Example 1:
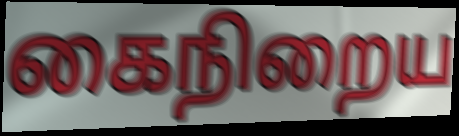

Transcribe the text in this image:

கைநிறைய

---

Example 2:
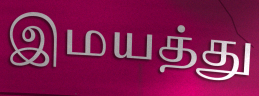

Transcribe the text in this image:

இமயத்து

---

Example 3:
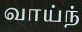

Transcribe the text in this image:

வாய்ந்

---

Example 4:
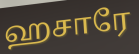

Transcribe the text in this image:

ஹசாரே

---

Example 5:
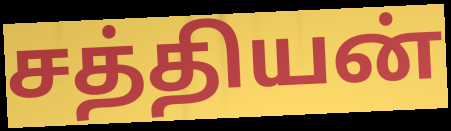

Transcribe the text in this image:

சத்தியன்